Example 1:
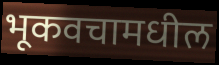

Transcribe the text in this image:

भूकवचामधील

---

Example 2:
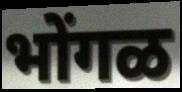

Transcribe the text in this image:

भोंगळ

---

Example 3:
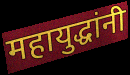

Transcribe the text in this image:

महायुद्धांनी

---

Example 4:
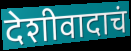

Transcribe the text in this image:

देशीवादाचं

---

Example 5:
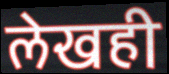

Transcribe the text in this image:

लेखही